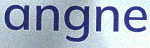
angne